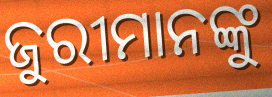
ଜୁରୀମାନଙ୍କୁ